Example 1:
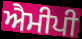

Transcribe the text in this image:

ਐਮੀਪੀ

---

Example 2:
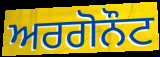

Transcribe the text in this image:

ਅਰਗੋਨੌਟ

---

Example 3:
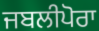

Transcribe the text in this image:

ਜਬਲੀਪੋਰਾ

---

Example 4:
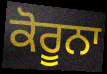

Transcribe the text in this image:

ਕੋਰੂਨਾ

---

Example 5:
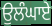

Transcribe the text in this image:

ਉਲੰਘਾਏ